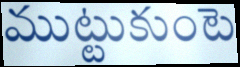
ముట్టుకుంటె